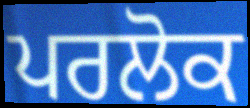
ਪਰਲੋਕ